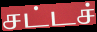
சட்டச்